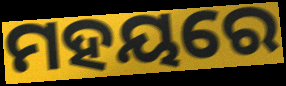
ମହୟରେ